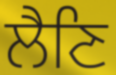
ਲੈਣਿ